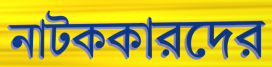
নাটককারদের